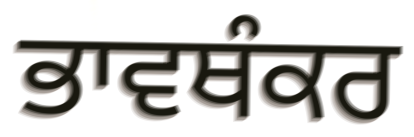
ਭਾਵਥੰਕਰ